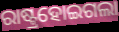
ରାଷ୍ଟ୍ରହୋଇଗଲା